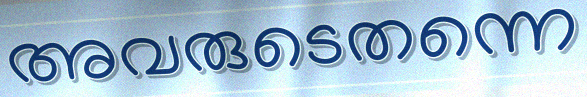
അവരുടെതന്നെ